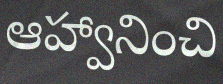
ఆహ్వానించి